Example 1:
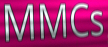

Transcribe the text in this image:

MMCs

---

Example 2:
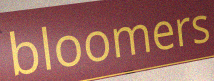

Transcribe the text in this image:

bloomers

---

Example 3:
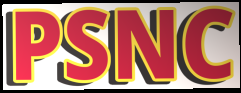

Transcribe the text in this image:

PSNC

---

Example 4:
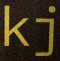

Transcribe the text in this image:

kj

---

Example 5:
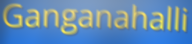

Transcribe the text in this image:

Ganganahalli